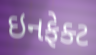
ઇનફેક્ટ